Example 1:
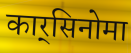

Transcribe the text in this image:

कार्सिनोमा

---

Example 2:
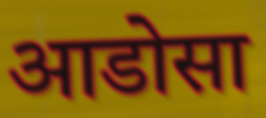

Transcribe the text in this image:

आडोसा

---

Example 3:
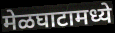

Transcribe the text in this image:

मेळघाटामध्ये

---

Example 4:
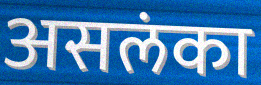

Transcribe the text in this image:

असलंका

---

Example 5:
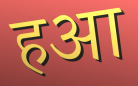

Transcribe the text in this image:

हआ